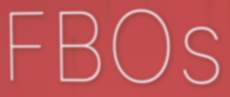
FBOs